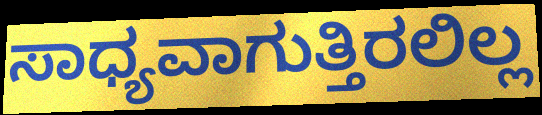
ಸಾಧ್ಯವಾಗುತ್ತಿರಲಿಲ್ಲ